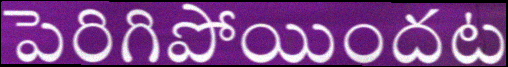
పెరిగిపోయిందట